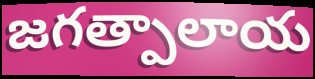
జగత్పాలాయ